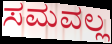
ಸಮವಲ್ಲ